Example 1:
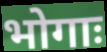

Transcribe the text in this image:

भोगाः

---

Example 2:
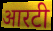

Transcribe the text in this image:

आरटी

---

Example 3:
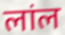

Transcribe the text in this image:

लांल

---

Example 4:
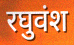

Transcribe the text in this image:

रघुवंश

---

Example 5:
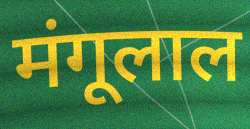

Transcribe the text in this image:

मंगूलाल